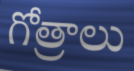
గోత్రాలు